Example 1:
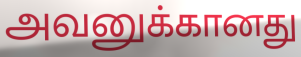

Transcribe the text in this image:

அவனுக்கானது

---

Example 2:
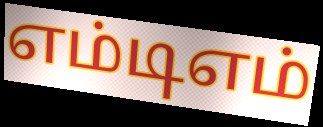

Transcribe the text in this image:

எம்டிஎம்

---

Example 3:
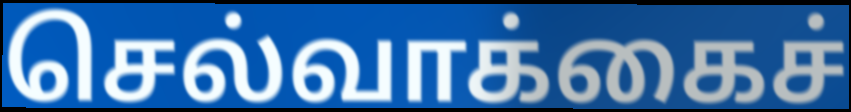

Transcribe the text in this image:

செல்வாக்கைச்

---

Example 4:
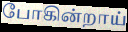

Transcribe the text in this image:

போகின்றாய்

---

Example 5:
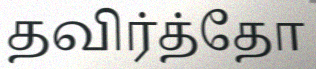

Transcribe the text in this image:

தவிர்த்தோ